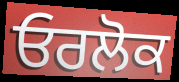
ਓਰਲੋਕ